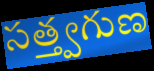
సత్త్వగుణ